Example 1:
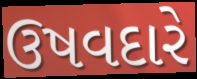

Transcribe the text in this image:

ઉષવદારે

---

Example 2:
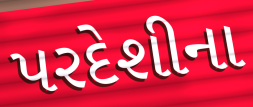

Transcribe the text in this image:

પરદેશીના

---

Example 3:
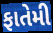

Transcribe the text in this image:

ફાતેમી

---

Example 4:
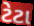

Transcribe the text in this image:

ટેટા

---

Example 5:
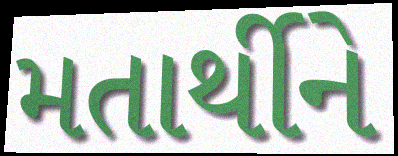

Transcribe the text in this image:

મતાર્થીને